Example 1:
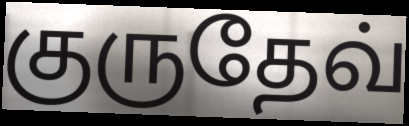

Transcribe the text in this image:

குருதேவ்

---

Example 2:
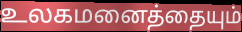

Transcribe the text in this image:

உலகமனைத்தையும்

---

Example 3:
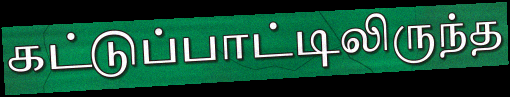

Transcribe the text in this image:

கட்டுப்பாட்டிலிருந்த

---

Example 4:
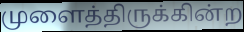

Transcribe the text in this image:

முளைத்திருக்கின்ற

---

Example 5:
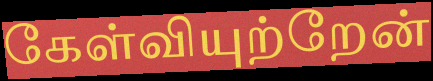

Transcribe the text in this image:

கேள்வியுற்றேன்